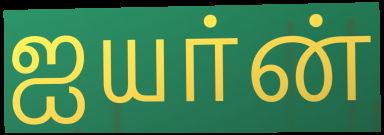
ஐயர்ன்